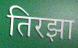
तिरझा